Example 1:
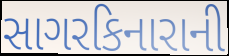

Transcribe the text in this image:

સાગરકિનારાની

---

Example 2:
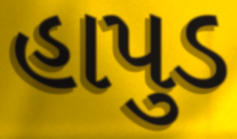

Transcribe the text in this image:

હાપુડ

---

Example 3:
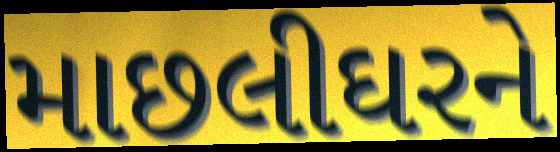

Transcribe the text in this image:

માછલીઘરને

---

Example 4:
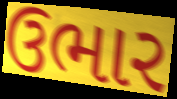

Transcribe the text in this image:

ઉભાર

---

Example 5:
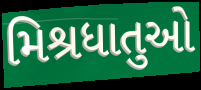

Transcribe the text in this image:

મિશ્રધાતુઓ